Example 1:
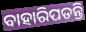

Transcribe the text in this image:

ବାହାରିପଡନ୍ତି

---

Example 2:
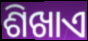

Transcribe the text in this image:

ଶିଖାଏ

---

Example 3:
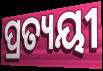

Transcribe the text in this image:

ପ୍ରତ୍ୟୟୀ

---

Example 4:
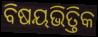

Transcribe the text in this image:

ବିଷୟଭିତ୍ତିକ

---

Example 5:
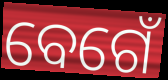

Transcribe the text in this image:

ବେଗେଁ